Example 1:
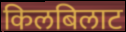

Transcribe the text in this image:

किलबिलाट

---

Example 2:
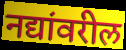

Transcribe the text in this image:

नद्यांवरील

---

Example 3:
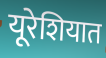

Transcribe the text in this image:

यूरेशियात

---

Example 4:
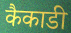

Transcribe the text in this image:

कैकाडी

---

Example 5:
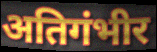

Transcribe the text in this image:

अतिगंभीर